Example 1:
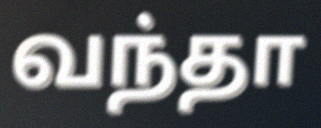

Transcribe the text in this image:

வந்தா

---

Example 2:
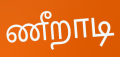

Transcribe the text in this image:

ணீறாடி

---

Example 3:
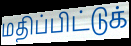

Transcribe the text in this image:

மதிப்பிட்டுக்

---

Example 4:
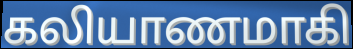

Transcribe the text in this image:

கலியாணமாகி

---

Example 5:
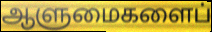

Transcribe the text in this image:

ஆளுமைகளைப்